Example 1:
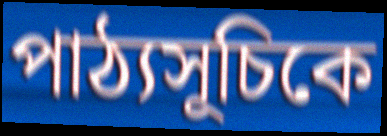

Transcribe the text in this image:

পাঠ্যসূচিকে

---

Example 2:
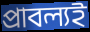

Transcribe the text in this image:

প্রাবল্যই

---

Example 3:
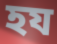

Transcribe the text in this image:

হয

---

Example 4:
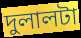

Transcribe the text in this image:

দুলালটা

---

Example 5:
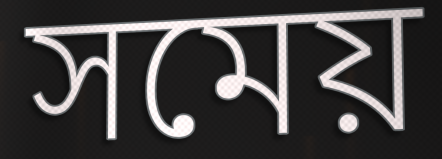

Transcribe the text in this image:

সমেয়